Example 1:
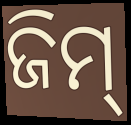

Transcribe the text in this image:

ଜିମ୍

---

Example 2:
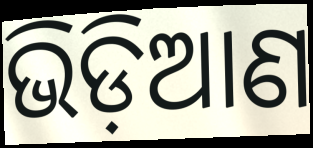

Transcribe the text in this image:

ଭିଡ଼ିଆଣ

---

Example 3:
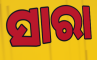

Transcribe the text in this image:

ସାରା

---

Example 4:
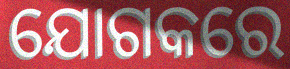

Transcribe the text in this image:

ଯୋଗକରେ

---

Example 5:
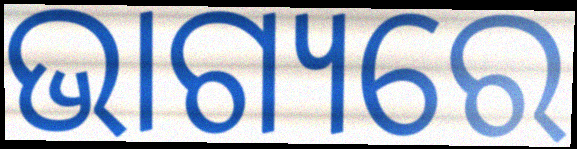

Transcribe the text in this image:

ଭାଗ୍ୟରେ